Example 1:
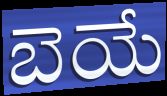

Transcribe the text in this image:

బెయే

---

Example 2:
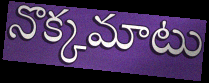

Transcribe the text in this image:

నొక్కమాటు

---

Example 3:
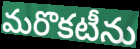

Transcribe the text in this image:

మరొకటీను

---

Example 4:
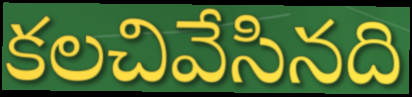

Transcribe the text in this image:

కలచివేసినది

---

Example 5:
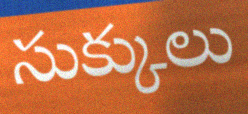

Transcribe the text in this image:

సుక్కులు